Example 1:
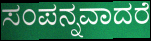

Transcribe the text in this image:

ಸಂಪನ್ನವಾದರೆ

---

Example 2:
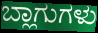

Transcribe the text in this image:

ಬ್ಲಾಗುಗಳು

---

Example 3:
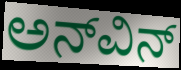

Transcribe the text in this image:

ಅನ್‌ವಿನ್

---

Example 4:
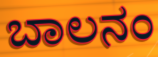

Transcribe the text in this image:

ಬಾಲನಂ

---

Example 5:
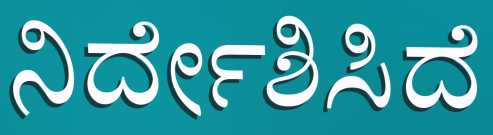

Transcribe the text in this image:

ನಿರ್ದೇಶಿಸಿದೆ